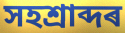
সহশ্ৰাব্দৰ